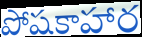
పోషకాహార